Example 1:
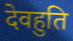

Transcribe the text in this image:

देवहुति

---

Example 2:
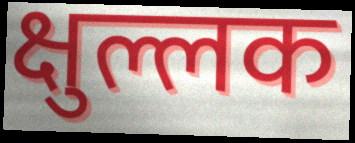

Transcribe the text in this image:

क्षुल्लक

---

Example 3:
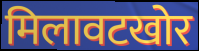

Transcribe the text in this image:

मिलावटखोर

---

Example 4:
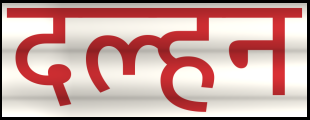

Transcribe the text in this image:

दल्हन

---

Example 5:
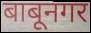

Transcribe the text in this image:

बाबूनगर